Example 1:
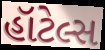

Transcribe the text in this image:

હૉટેલ્સ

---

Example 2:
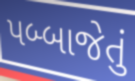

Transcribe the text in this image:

પબ્બાજેતું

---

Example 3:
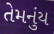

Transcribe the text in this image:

તેમનુંય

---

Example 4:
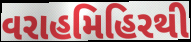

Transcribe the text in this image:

વરાહમિહિરથી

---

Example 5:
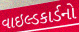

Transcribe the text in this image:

વાઇલ્ડકાર્ડનો